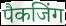
पैकजिंग